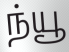
ந்யூ